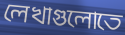
লেখাগুলোতে